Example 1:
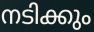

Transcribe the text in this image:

നടിക്കും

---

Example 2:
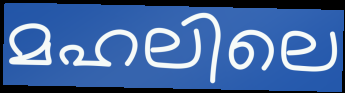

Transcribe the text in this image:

മഹലിലെ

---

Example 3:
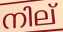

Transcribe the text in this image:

നില്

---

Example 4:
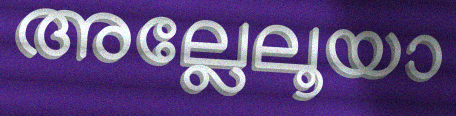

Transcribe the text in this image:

അല്ലേലൂയാ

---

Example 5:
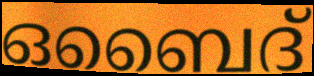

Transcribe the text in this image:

ഒബൈദ്